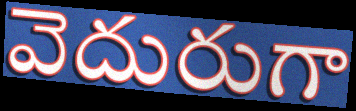
వెదురుగా